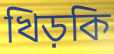
খিড়কি